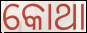
କୋଥା